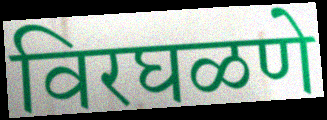
विरघळणे